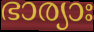
ഭാര്യാഃ